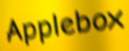
Applebox